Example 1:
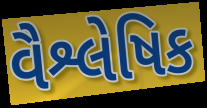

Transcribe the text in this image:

વૈશ્લેષિક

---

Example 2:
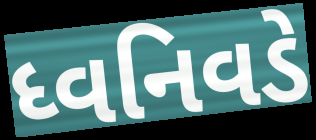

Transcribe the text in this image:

ધ્વનિવડે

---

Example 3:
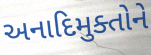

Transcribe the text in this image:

અનાદિમુક્તોને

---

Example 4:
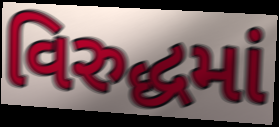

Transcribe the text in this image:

વિરુદ્ધમાં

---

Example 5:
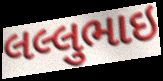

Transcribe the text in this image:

લલ્લુભાઇ